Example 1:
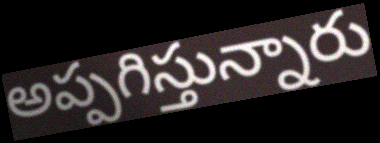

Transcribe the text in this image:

అప్పగిస్తున్నారు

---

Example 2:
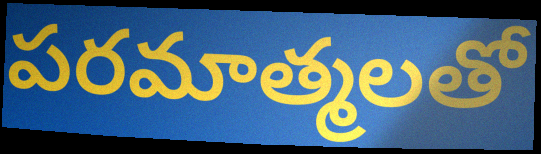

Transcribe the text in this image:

పరమాత్మలతో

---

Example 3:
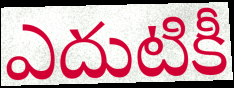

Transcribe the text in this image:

ఎదుటికీ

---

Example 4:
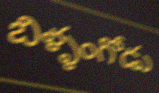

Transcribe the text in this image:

బిళ్ళంగోడు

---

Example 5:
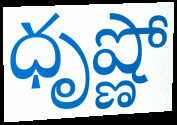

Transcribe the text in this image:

ధృష్ణో